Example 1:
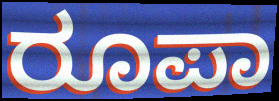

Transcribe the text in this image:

ರೂಪಾ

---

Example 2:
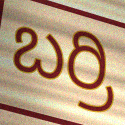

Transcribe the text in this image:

ಬರ್ರಿ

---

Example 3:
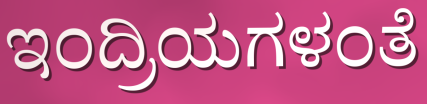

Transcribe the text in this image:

ಇಂದ್ರಿಯಗಳಂತೆ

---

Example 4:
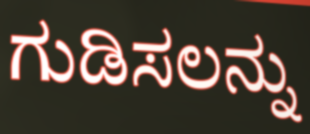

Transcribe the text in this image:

ಗುಡಿಸಲನ್ನು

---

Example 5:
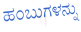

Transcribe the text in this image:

ಹಂಬುಗಳನ್ನು